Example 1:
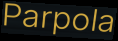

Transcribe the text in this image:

Parpola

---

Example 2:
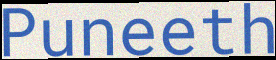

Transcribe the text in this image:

Puneeth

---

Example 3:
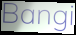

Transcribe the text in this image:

Bangi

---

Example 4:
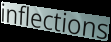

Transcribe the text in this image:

inflections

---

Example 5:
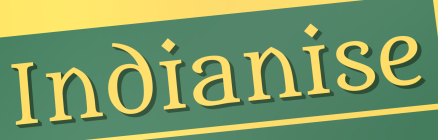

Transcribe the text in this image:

Indianise